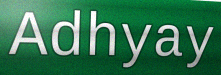
Adhyay